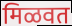
मिळवत